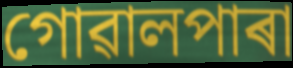
গোৱালপাৰা